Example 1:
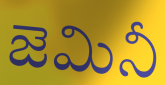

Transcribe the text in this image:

జెమినీ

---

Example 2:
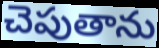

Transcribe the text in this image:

చెపుతాను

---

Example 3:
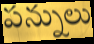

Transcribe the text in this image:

పన్నులు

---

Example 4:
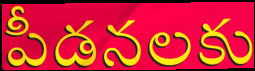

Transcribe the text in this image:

పీడనలకు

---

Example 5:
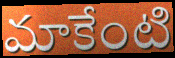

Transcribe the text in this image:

మాకేంటి